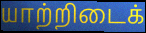
யாற்றிடைக்